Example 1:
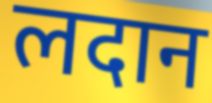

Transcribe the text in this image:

लदान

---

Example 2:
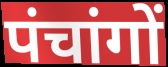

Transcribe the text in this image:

पंचांगों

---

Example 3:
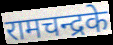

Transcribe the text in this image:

रामचन्द्रके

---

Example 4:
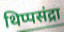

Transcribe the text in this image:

थिप्पसंद्रा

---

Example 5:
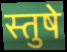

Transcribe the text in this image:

स्तुषे